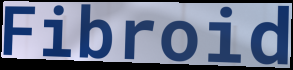
Fibroid